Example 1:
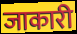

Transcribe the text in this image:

जाकारी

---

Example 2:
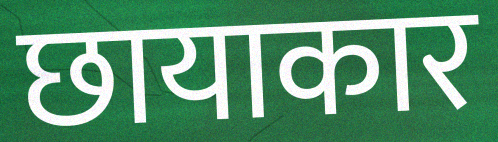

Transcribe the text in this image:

छायाकार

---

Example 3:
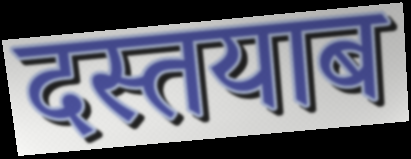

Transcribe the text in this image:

दस्तयाब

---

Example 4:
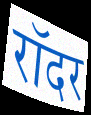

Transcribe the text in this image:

रॉदर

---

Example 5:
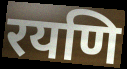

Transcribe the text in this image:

रयणि